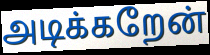
அடிக்கறேன்